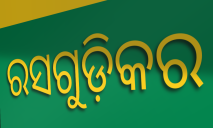
ରସଗୁଡ଼ିକର